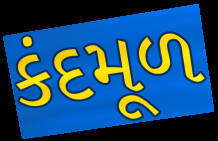
કંદમૂળ